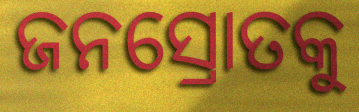
ଜନସ୍ରୋତକୁ